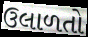
ઉલાળતો